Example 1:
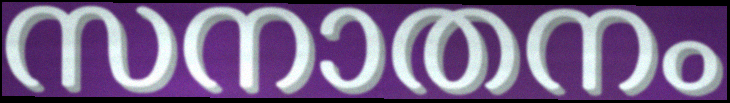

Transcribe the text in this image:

സനാതനം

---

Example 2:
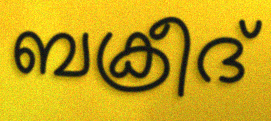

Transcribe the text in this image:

ബക്രീദ്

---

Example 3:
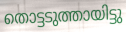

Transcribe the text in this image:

തൊട്ടടുത്തായിട്ടു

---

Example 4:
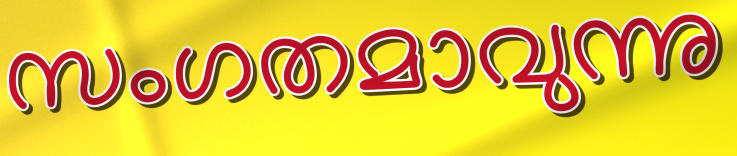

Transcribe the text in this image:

സംഗതമാവുന്നു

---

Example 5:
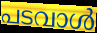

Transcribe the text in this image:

പടവാൾ